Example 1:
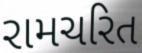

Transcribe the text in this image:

રામચરિત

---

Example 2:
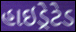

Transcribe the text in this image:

હાઇડ્રેટેડ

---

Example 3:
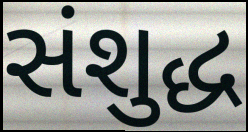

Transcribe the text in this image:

સંશુદ્ધ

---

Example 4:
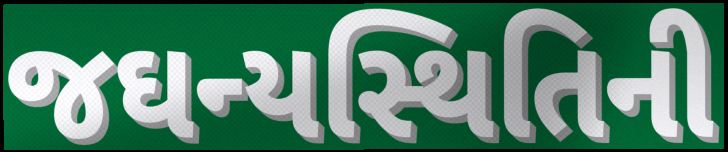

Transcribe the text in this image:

જઘન્યસ્થિતિની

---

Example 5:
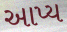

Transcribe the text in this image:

આપ્ય